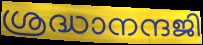
ശ്രദ്ധാനന്ദജി